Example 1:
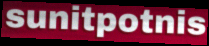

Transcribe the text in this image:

sunitpotnis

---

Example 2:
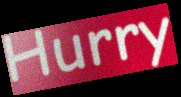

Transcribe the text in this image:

Hurry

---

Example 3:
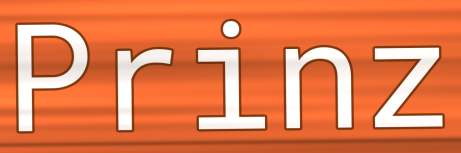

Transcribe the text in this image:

Prinz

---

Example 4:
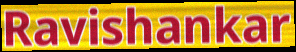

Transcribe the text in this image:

Ravishankar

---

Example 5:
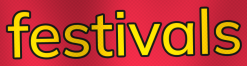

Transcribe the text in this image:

festivals